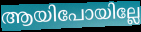
ആയിപോയില്ലേ